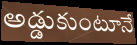
అడ్డుకుంటూనే